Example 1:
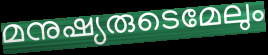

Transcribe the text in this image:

മനുഷ്യരുടെമേലും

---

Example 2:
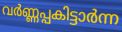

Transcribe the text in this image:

വർണ്ണപ്പകിട്ടാർന്ന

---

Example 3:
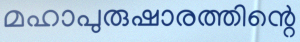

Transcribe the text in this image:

മഹാപുരുഷാരത്തിന്റെ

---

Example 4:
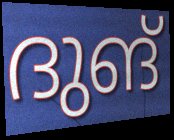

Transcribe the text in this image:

ദുങ്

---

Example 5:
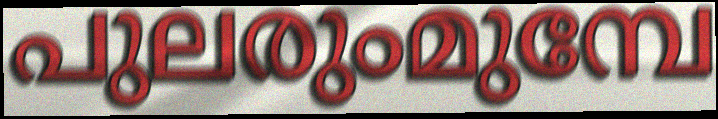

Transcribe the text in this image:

പുലരുംമുമ്പേ